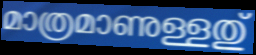
മാത്രമാണുള്ളതു്